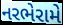
નરભેરામે